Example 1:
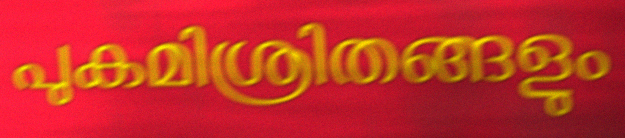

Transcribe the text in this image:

പുകമിശ്രിതങ്ങളും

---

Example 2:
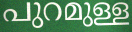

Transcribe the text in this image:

പുറമുള്ള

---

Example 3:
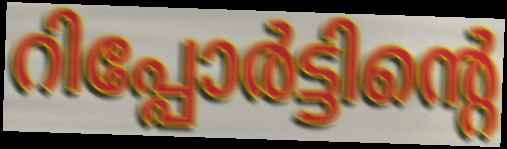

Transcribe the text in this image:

റിപ്പോർട്ടിന്റെ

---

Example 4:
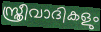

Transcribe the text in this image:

സ്ത്രീവാദികളും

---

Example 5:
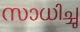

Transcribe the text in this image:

സാധിച്ചു